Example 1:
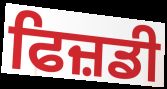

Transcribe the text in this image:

ਫਿਜ਼ਡੀ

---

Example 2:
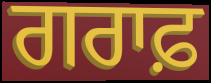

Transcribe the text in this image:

ਗਰਾਫ਼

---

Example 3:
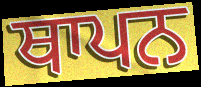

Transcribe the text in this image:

ਥਾਪਨ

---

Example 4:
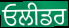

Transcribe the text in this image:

ਓਲੀਡਰ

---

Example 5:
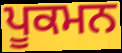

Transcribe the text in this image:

ਪੂਕਮਨ